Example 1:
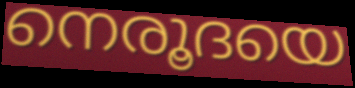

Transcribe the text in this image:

നെരൂദയെ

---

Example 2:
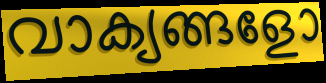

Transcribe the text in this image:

വാക്യങ്ങളോ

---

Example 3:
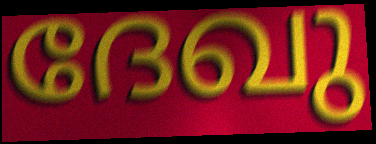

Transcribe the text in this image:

ദേഖു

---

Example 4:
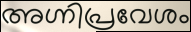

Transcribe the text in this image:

അഗ്നിപ്രവേശം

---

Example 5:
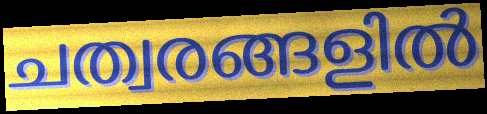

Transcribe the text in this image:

ചത്വരങ്ങളിൽ